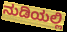
ನುಡಿಯಲ್ಲಿ